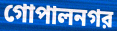
গোপালনগর